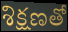
శిక్షణతో